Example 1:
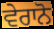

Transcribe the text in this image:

ਵੇਰਾਨੋ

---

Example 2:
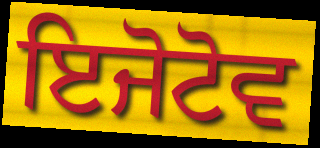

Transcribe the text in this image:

ਇਜੋਟੋਵ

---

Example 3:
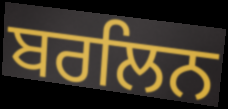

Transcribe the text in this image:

ਬਰਲਿਨ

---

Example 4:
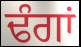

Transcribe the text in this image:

ਢੰਗਾਂ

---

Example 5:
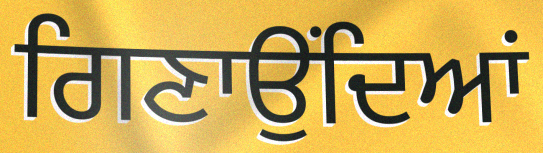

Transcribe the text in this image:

ਗਿਣਾਉਂਦਿਆਂ